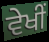
ਵੇਖੀਂ